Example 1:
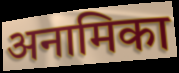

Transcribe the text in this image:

अनामिका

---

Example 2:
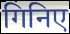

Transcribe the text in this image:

गिनिए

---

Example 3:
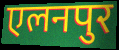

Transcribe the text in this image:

एलनपुर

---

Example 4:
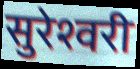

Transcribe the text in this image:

सुरेश्वरी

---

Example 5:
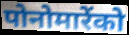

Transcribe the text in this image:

पोनोमारेंको